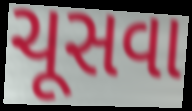
ચૂસવા